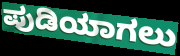
ಪುಡಿಯಾಗಲು